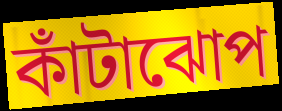
কাঁটাঝোপ